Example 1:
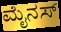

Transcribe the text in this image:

ಮೈನಸ್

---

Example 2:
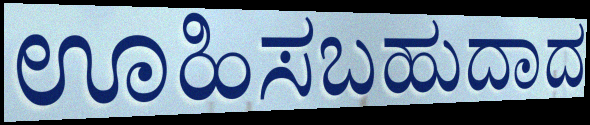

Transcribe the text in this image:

ಊಹಿಸಬಹುದಾದ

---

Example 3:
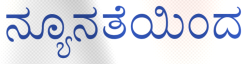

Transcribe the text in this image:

ನ್ಯೂನತೆಯಿಂದ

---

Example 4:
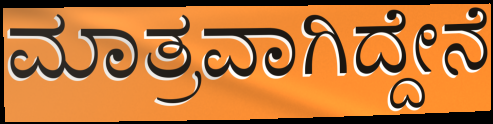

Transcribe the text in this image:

ಮಾತ್ರವಾಗಿದ್ದೇನೆ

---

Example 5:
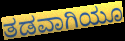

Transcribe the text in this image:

ತಡವಾಗಿಯೂ